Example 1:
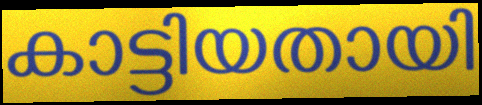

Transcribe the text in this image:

കാട്ടിയതായി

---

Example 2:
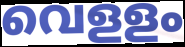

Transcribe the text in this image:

വെളളം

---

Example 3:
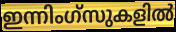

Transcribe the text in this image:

ഇന്നിംഗ്സുകളിൽ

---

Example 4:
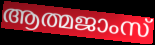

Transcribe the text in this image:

ആത്മജാംസ്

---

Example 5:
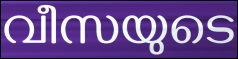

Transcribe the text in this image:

വീസയുടെ